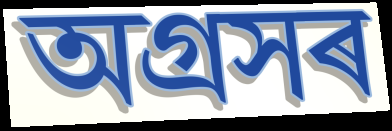
অগ্ৰসৰ